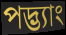
পদ্ভ্যাং